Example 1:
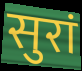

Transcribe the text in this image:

सुरां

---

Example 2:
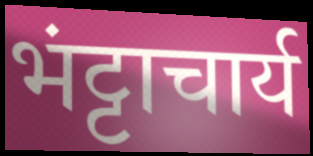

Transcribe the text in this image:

भंट्टाचार्य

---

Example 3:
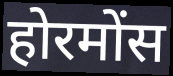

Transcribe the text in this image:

होरमोंस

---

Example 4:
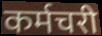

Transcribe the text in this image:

कर्मचरी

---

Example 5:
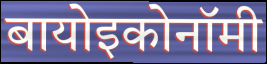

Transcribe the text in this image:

बायोइकोनॉमी